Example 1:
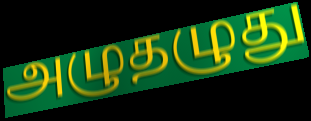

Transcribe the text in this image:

அழுதழுது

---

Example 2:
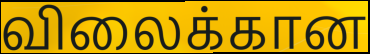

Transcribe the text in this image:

விலைக்கான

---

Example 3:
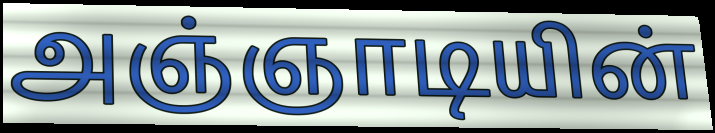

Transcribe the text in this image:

அஞ்ஞாடியின்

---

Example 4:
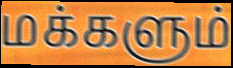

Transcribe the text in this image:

மக்களும்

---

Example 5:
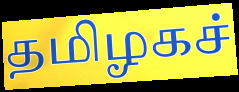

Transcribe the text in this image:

தமிழகச்